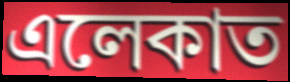
এলেকাত